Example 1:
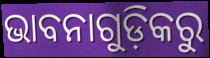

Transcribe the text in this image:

ଭାବନାଗୁଡ଼ିକରୁ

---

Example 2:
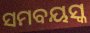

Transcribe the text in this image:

ସମବୟସ୍କ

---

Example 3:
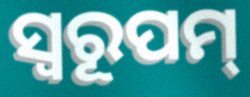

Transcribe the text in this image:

ସ୍ଵରୂପମ୍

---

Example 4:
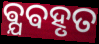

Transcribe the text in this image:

ଵ୍ଯଵହୃତ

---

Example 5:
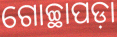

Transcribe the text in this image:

ଗୋଚ୍ଛାପଡ଼ା